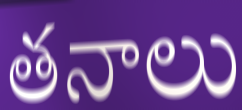
తనాలు